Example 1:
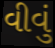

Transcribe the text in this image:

વીવું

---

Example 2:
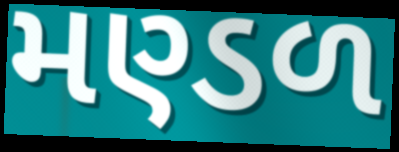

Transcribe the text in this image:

મણ્ડળ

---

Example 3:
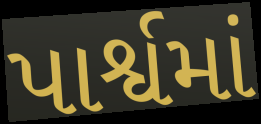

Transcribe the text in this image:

પાર્શ્વમાં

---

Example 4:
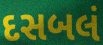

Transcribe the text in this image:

દસબલં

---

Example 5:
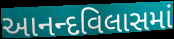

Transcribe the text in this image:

આનન્દવિલાસમાં